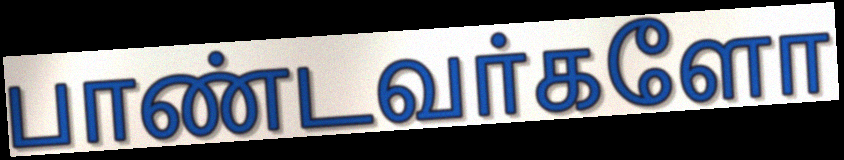
பாண்டவர்களோ